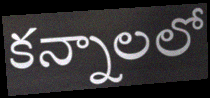
కన్నాలలో